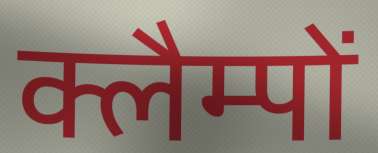
क्लैम्पों